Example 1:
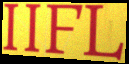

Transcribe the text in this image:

IIFL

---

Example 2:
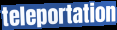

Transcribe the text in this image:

teleportation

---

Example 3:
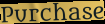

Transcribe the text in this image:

Purchase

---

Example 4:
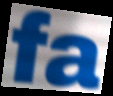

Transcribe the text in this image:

fa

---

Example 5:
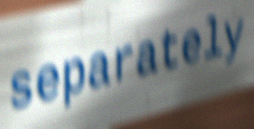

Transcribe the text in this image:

separately